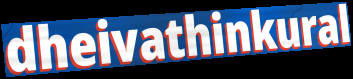
dheivathinkural